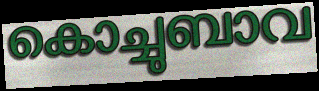
കൊച്ചുബാവ